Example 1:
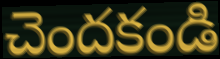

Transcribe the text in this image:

చెందకండి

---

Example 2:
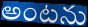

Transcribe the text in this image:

అంటను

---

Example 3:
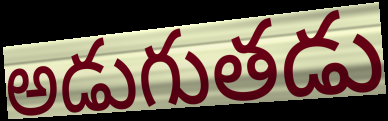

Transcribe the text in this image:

అడుగుతడు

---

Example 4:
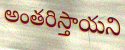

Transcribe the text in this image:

అంతరిస్తాయని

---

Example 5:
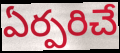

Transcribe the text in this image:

ఏర్పరిచే